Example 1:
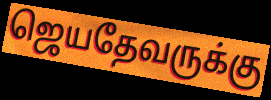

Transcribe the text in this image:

ஜெயதேவருக்கு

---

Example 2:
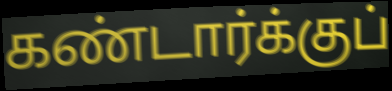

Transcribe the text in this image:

கண்டார்க்குப்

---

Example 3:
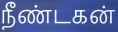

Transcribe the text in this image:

நீண்டகன்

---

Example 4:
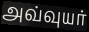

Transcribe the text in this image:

அவ்வுயர்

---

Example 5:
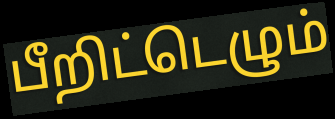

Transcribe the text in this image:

பீறிட்டெழும்